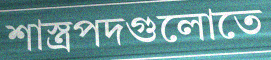
শাস্ত্রপদগুলোতে